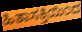
ಹಿತಾಸಕ್ತಿಯಿಂದ